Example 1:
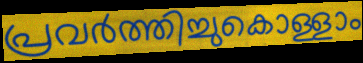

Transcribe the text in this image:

പ്രവർത്തിച്ചുകൊള്ളാം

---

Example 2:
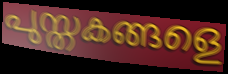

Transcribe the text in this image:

പുസ്തകങ്ങളെ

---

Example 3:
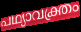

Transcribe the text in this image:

പഥ്യാവക്ത്രം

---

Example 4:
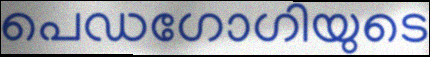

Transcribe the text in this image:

പെഡഗോഗിയുടെ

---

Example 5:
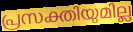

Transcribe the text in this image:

പ്രസക്തിയുമില്ല